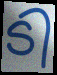
ടി